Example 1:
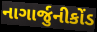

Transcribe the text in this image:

નાગાર્જુનીકોંડ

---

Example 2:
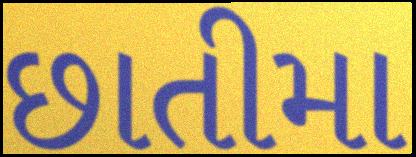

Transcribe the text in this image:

છાતીમા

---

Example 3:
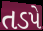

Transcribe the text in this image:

તડપે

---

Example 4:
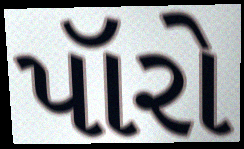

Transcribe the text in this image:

પૉરો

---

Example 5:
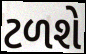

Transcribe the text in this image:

ટળશે